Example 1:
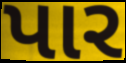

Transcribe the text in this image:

પાર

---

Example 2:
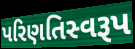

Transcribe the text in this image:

પરિણતિસ્વરૂપ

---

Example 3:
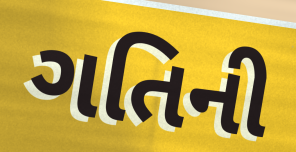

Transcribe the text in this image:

ગતિની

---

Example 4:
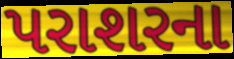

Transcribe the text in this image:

પરાશરના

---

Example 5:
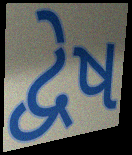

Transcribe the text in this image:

દ્વેષ